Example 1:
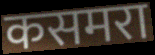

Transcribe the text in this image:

कसमरा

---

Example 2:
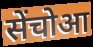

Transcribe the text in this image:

सेंचोआ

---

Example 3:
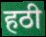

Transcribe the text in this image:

हठी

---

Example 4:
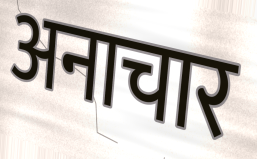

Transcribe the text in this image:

अनाचार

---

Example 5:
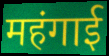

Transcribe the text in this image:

महंगाई